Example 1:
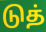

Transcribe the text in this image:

டுத்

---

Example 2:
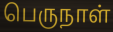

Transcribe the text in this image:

பெருநாள்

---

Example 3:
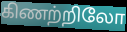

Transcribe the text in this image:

கிணற்றிலோ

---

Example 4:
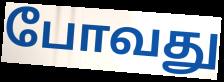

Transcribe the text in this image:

போவது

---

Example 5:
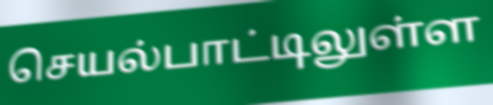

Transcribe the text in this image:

செயல்பாட்டிலுள்ள